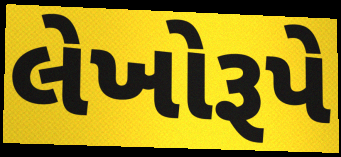
લેખોરૂપે